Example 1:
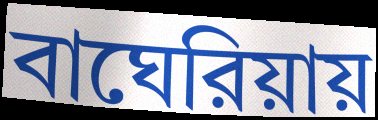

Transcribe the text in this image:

বাঘেরিয়ায়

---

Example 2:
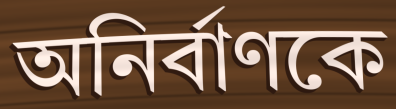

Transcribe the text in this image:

অনির্বাণকে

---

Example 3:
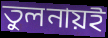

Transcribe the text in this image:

তুলনায়ই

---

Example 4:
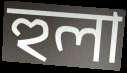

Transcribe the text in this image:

হুলা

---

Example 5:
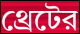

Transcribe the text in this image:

থ্রেটের